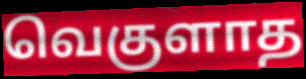
வெகுளாத